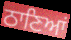
ਠਾਣਿਆਂ